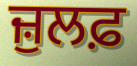
ਜ਼ੁਲਫ਼